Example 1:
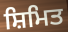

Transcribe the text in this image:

ਸ਼ਿਮਿਤ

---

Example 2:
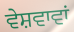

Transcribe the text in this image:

ਵੇਸ਼ਵਾਵਾਂ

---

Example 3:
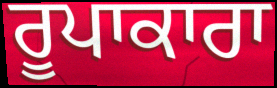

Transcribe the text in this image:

ਰੂਪਾਕਾਰਾ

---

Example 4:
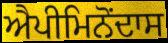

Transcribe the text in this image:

ਐਪੀਮਿਨੋਂਦਾਸ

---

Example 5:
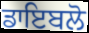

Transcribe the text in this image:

ਡਾਇਬਲੋ